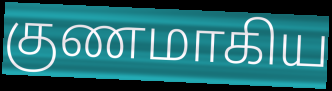
குணமாகிய